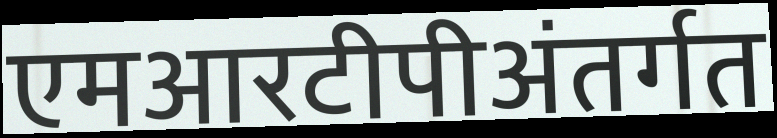
एमआरटीपीअंतर्गत